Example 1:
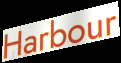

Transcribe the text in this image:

Harbour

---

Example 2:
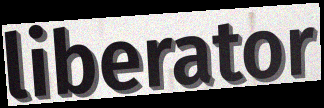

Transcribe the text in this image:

liberator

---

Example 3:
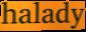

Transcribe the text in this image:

halady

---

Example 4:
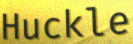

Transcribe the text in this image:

Huckle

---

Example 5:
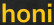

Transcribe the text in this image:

honi